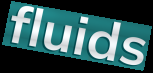
fluids